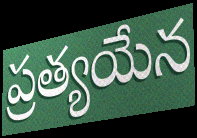
ప్రత్యయేన